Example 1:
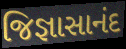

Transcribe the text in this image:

જિજ્ઞાસાનંદ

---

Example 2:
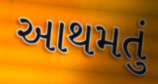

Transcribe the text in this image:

આથમતું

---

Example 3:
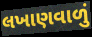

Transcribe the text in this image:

લખાણવાળું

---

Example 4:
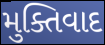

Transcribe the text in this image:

મુક્તિવાદ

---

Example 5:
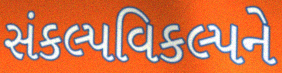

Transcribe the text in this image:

સંકલ્પવિકલ્પને